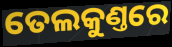
ତେଲକୁଣ୍ତରେ